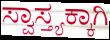
ಸ್ವಾಸ್ತ್ಯಕ್ಕಾಗಿ